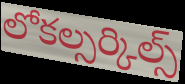
లోకల్సర్కిల్స్